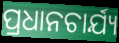
ପ୍ରଧାନଚାର୍ଯ୍ୟ